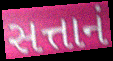
સત્તાનં